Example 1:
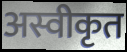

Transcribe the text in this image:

अस्‍वीकृत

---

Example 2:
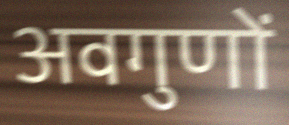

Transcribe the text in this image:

अवगुणों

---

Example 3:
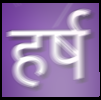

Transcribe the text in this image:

हर्ष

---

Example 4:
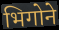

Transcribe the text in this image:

भिगोने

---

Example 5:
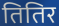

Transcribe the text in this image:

तितिर